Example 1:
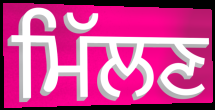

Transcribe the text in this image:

ਮਿੱਲਣ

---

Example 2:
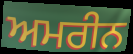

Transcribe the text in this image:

ਅਮਰੀਨ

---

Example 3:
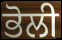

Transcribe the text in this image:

ਭੋਲੀ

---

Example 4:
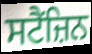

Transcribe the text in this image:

ਸਟੈਂਜ਼ਿਨ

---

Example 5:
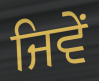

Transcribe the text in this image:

ਜਿਵੇਂ